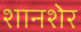
शानशेर